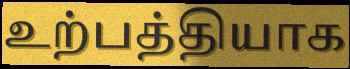
உற்பத்தியாக